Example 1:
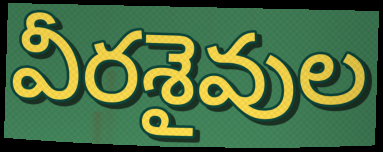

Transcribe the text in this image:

వీరశైవుల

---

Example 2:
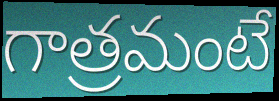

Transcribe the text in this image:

గాత్రమంటే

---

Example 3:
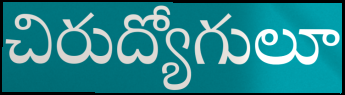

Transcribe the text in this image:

చిరుద్యోగులూ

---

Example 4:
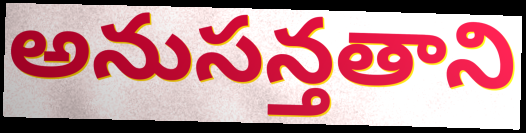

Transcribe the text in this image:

అనుసన్తతాని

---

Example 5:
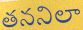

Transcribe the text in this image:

తననిలా